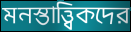
মনস্তাত্ত্বিকদের